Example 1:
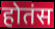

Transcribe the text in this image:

होतंस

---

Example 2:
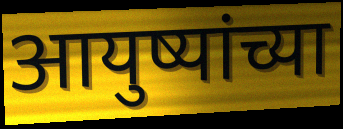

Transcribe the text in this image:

आयुष्यांच्या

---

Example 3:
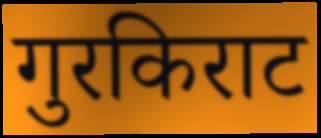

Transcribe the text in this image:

गुरकिराट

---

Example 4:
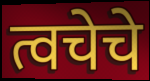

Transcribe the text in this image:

त्वचेचे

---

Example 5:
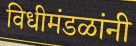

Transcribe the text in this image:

विधीमंडळांनी